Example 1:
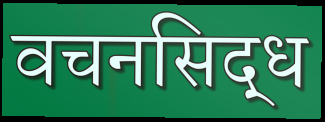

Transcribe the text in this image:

वचनसिद्ध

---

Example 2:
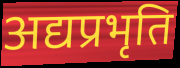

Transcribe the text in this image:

अद्यप्रभृति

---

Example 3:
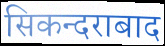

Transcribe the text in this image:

सिकन्दराबाद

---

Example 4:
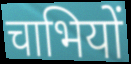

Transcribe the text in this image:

चाभियों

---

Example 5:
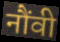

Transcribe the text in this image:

नौंवी